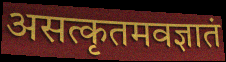
असत्कृतमवज्ञातं